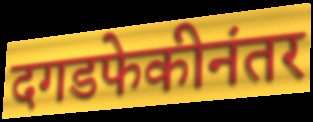
दगडफेकीनंतर